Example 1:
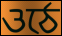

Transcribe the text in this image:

ওঠে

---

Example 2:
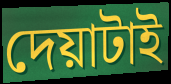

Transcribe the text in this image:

দেয়াটাই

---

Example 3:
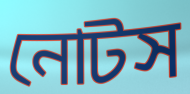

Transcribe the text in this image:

নোটস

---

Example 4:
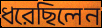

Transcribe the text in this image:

ধরেছিলেন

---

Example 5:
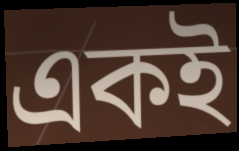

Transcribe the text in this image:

একই